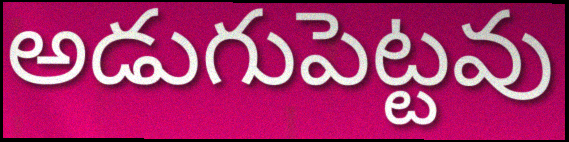
అడుగుపెట్టవు